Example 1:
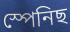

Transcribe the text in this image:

স্পেনিছ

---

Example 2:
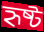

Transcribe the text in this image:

হৃষ্ট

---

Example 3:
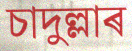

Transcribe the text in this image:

চাদুল্লাৰ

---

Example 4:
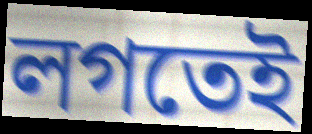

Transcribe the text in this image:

লগতেই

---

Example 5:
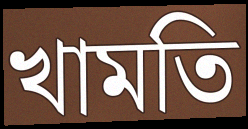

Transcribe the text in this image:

খামতি